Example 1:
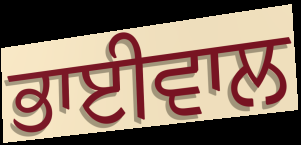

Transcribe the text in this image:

ਭਾਈਵਾਲ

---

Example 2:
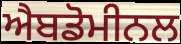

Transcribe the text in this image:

ਐਬਡੋਮੀਨਲ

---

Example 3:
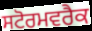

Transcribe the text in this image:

ਸਟੋਰਮਵਰੈਕ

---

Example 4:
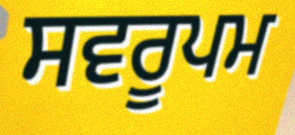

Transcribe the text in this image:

ਸਵਰੂਪਮ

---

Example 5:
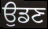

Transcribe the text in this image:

ਉਡਣ